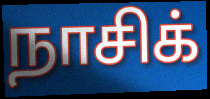
நாசிக்